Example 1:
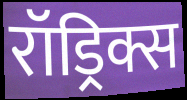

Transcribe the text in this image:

रॉड्रिक्स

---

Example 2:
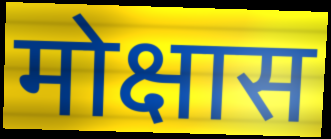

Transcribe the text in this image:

मोक्षास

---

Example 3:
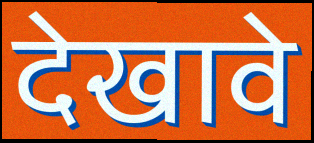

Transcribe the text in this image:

देखावे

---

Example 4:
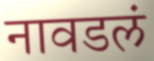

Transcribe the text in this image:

नावडलं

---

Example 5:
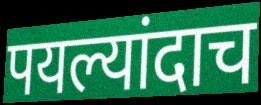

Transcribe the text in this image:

पयल्यांदाच